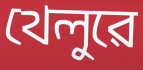
থেলুৱে